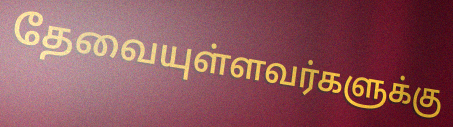
தேவையுள்ளவர்களுக்கு